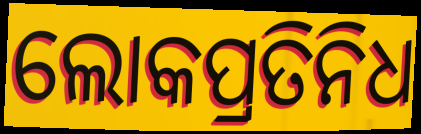
ଲୋକପ୍ରତିନିଧ